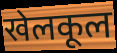
खेलकूल